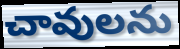
చావులను